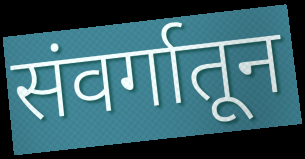
संवर्गातून